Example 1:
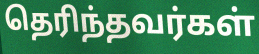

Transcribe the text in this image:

தெரிந்தவர்கள்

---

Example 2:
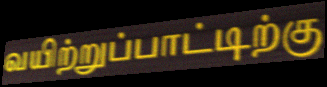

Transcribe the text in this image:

வயிற்றுப்பாட்டிற்கு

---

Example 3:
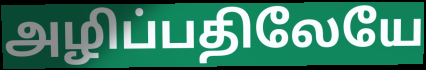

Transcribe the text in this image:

அழிப்பதிலேயே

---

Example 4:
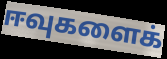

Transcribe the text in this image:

ஈவுகளைக்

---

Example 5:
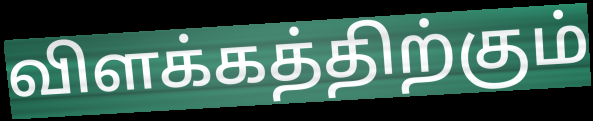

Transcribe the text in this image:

விளக்கத்திற்கும்